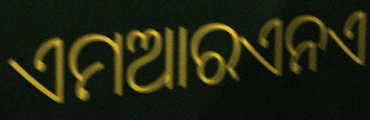
ଏମଆରଏନଏ